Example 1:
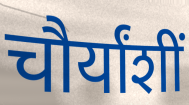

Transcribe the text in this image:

चौर्यांशीं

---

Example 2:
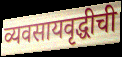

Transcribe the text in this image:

व्यवसायवृद्धीची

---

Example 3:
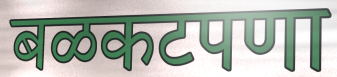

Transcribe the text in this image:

बळकटपणा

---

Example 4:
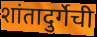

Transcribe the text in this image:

शांतादुर्गेची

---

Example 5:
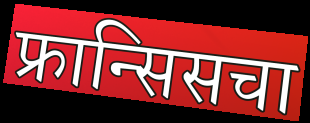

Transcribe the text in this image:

फ्रान्सिसचा